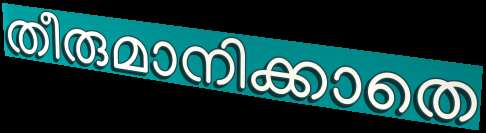
തീരുമാനിക്കാതെ